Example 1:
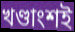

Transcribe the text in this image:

খণ্ডাংশই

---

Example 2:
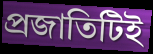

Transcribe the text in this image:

প্রজাতিটিই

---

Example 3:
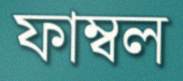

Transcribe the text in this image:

ফাম্বল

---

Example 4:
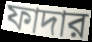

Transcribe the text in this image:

ফাদার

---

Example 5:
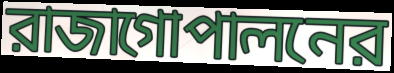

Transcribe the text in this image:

রাজাগোপালনের